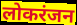
लोकरंजन